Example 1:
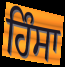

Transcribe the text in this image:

ਹਿੰਸਾ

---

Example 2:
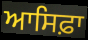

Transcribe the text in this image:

ਆਸਿਫ਼ਾ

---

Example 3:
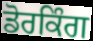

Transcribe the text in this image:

ਡੋਰਕਿੰਗ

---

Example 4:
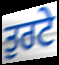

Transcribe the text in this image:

ਤੁਰਟੇ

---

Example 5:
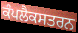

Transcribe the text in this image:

ਕੰਪਲੈਕਸਤਰਨ